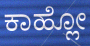
ಕಾಹ್ಲೋ